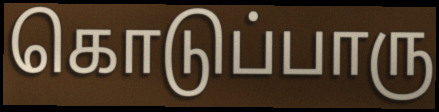
கொடுப்பாரு